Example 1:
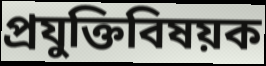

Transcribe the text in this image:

প্রযুক্তিবিষয়ক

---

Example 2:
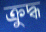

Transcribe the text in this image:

ক্রুদ্ধ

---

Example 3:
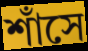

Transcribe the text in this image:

শাঁসে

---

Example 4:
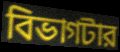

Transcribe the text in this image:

বিভাগটার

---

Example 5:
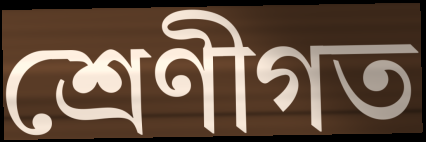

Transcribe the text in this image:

শ্রেণীগত